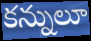
కన్నులూ